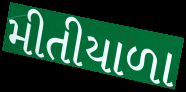
મીતીયાળા